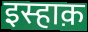
इस्हाक़